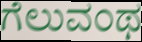
ಗೆಲುವಂಥ